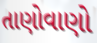
તાણોવાણો